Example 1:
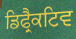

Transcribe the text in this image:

ਡਿਫ੍ਰੈਕਟਿਵ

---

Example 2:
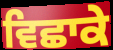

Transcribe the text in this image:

ਵਿਛਾਕੇ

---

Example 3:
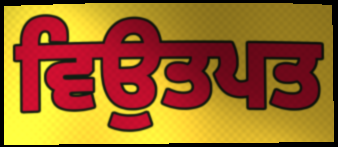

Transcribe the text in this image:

ਵਿਉਤਪਤ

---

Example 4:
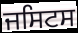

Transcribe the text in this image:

ਜਸਿਟਸ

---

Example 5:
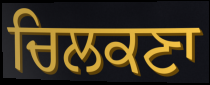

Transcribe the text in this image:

ਚਿਲਕਣਾ